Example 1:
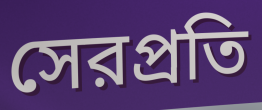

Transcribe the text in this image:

সেরপ্রতি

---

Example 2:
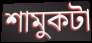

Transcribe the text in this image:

শামুকটা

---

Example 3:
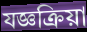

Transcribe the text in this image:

যজ্ঞক্রিয়া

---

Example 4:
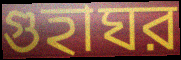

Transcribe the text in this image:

গুহাঘর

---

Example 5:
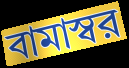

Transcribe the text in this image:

বামাস্বর